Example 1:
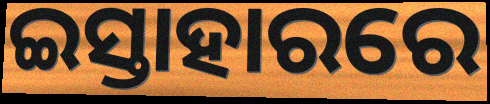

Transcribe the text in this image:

ଇସ୍ତାହାରରେ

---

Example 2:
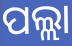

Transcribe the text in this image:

ପଲ୍ଲା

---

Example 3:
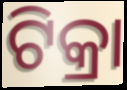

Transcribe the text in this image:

ଟିକ୍ରା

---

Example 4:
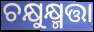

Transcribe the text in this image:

ଚକ୍ଷୁକ୍ଷ୍ମତ୍ତା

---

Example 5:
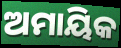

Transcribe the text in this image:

ଅମାୟିକ